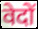
वेदों